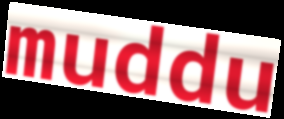
muddu